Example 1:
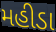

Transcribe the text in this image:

મહીડા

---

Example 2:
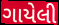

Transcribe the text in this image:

ગાયેલી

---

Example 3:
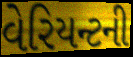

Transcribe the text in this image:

વેરિયન્ટની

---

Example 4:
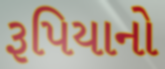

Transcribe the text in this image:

રૂપિયાનો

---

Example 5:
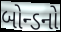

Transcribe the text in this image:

બોન્ડનો